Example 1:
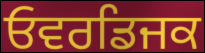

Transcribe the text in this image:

ਓਵਰਡਿਜਕ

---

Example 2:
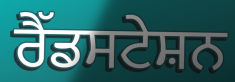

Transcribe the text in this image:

ਰੈੱਡਸਟੇਸ਼ਨ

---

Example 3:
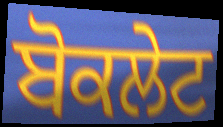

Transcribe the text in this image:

ਬੋਕਲੇਟ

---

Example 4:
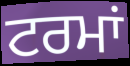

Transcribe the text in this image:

ਟਰਮਾਂ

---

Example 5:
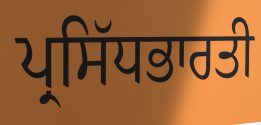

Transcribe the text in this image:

ਪ੍ਰਸਿੱਧਭਾਰਤੀ